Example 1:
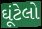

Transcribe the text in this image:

ઘૂંટેલો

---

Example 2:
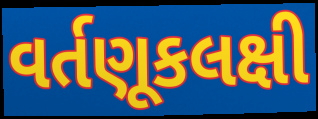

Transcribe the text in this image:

વર્તણૂકલક્ષી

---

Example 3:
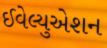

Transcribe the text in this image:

ઈવેલ્યુએશન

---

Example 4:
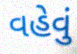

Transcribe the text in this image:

વહેવું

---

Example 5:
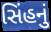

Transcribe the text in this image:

સિંહનું